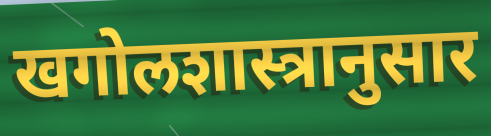
खगोलशास्त्रानुसार